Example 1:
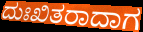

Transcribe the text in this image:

ದುಃಖಿತರಾದಾಗ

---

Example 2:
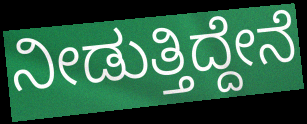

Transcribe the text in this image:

ನೀಡುತ್ತಿದ್ದೇನೆ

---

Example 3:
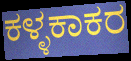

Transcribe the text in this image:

ಕಳ್ಳಕಾಕರ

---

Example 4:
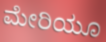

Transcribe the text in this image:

ಮೇರಿಯೂ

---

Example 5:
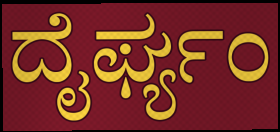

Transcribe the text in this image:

ದೈರ್ಘ್ಯಂ